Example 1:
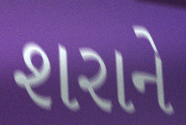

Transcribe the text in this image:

શરાને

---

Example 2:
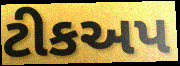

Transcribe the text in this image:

ટીકઅપ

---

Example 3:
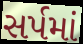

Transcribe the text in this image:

સર્પમાં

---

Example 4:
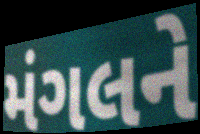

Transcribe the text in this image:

મંગલને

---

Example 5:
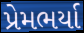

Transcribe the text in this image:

પ્રેમભર્યા